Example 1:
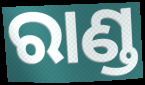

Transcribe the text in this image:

ରାଣ୍ଡ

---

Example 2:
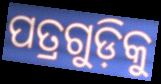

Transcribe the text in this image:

ପତ୍ରଗୁଡ଼ିକୁ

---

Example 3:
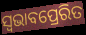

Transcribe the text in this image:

ସ୍ୱଭାବପ୍ରେରିତ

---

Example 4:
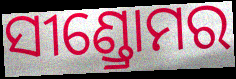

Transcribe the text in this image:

ସୀଣ୍ଡ୍ରୋମର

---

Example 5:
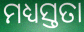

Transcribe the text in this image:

ମଧ୍ୟସ୍ତତା